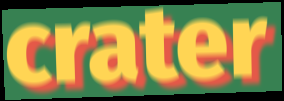
crater